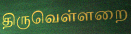
திருவெள்ளறை